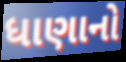
ધાણાનો